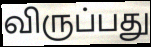
விருப்பது